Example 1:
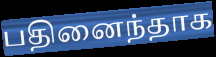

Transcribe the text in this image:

பதினைந்தாக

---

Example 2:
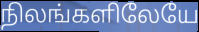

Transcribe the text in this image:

நிலங்களிலேயே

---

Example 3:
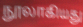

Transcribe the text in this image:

நூலாகியது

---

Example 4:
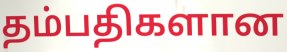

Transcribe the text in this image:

தம்பதிகளான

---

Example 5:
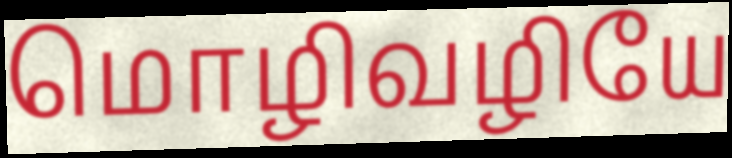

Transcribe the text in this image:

மொழிவழியே